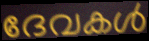
ദേവകൾ